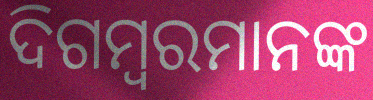
ଦିଗମ୍ବରମାନଙ୍କ